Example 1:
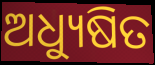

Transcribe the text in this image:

ଅଧ୍ୟୁଷିତ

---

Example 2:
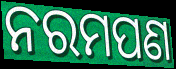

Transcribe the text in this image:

ନରମପଣ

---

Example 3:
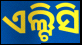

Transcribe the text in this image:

ଏଲ୍ଟିସି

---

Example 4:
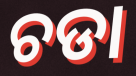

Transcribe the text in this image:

ଚଡା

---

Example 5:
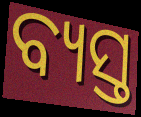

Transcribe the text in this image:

ବ୍ୟସ୍ତ